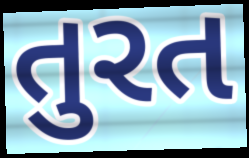
તુરત